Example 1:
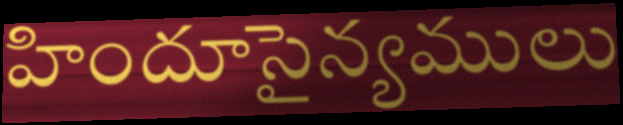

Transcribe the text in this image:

హిందూసైన్యములు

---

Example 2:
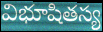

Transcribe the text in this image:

విభూషితస్య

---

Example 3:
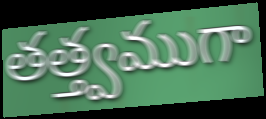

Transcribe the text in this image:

తత్త్వముగా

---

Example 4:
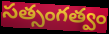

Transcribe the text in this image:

సత్సంగత్వం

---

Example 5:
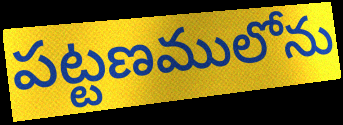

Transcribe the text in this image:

పట్టణములోను